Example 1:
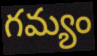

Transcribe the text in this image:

గమ్యం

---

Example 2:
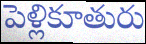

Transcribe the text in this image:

పెళ్లికూతురు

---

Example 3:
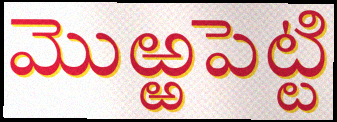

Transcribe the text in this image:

మొఱ్ఱపెట్టి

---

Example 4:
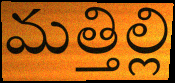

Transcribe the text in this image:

మత్తిల్లి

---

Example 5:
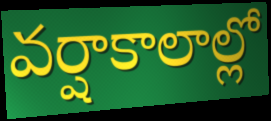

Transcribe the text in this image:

వర్షాకాలాల్లో